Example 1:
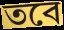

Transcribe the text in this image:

তবে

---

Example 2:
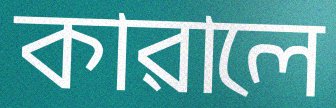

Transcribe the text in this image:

কাৱালে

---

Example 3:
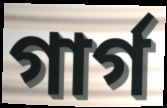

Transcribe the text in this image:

গাৰ্গ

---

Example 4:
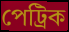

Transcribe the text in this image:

পেট্ৰিক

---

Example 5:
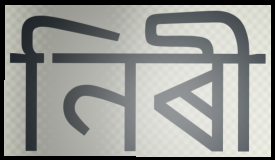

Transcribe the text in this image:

নিৰী